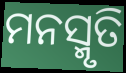
ମନସ୍ମୃତି